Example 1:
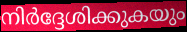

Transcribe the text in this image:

നിർദ്ദേശിക്കുകയും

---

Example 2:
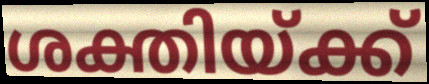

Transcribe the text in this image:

ശക്തിയ്ക്ക്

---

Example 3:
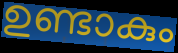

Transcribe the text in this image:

ഉണ്ടാകും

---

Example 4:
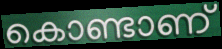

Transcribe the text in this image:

കൊണ്ടാണ്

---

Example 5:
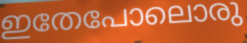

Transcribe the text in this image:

ഇതേപോലൊരു